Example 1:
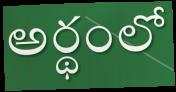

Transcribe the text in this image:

అర్థంలో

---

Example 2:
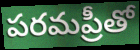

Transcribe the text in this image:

పరమప్రీతో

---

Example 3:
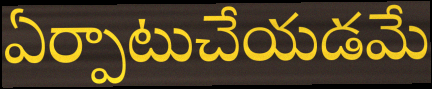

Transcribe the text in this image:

ఏర్పాటుచేయడమే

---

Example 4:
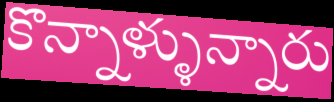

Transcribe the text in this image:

కొన్నాళ్ళున్నారు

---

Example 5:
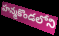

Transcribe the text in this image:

హన్మకొండలోని